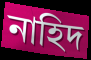
নাহিদ